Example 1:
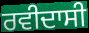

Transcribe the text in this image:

ਰਵੀਦਾਸੀ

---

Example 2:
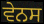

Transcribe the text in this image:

ਵੇਨਸ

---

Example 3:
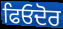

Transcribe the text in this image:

ਫਿਓਦੋਰ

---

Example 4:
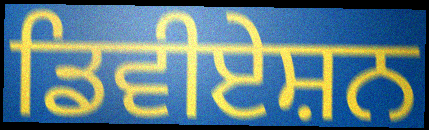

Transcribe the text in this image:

ਡਿਵੀਏਸ਼ਨ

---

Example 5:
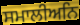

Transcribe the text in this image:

ਸਮਾਲੀਅਨਿ